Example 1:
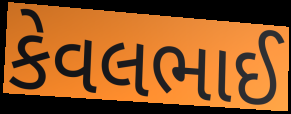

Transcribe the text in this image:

કેવલભાઈ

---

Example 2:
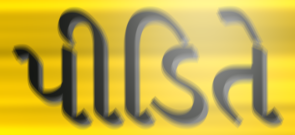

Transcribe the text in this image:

પીડિતે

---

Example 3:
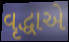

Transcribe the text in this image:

વૃદ્ધાએ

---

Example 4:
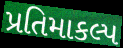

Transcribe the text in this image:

પ્રતિમાકલ્પ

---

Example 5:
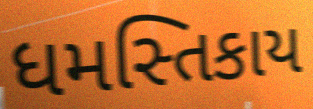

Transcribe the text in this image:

ધમસ્તિકાય